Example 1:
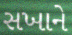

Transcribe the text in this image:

સખાને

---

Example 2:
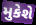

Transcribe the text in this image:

મુકેશે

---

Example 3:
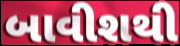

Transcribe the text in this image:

બાવીશથી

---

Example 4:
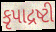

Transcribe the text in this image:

કૃપાદ્રષ્ટી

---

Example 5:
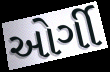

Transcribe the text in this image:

ઓર્ગી